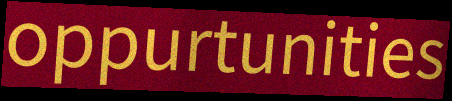
oppurtunities